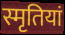
स्मृतियां